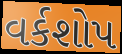
વર્કશોપ